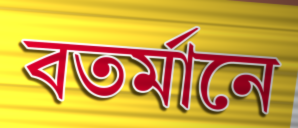
বতর্মানে